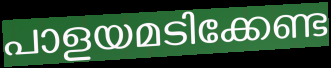
പാളയമടിക്കേണ്ട